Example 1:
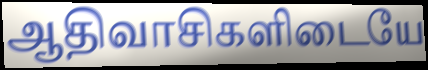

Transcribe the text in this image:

ஆதிவாசிகளிடையே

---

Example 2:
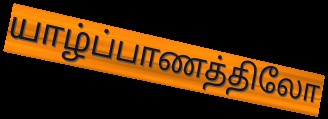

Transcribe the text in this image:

யாழ்ப்பாணத்திலோ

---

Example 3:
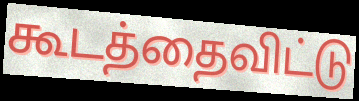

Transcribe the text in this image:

கூடத்தைவிட்டு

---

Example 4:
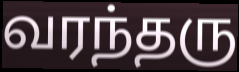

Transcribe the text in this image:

வரந்தரு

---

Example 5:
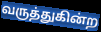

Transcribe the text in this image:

வருத்துகின்ற